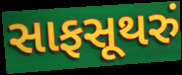
સાફસૂથરું